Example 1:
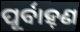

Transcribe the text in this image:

ପୂର୍ବାହ୍‌ଣ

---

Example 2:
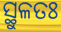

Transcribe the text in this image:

ସ୍ଥୁଳତଃ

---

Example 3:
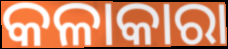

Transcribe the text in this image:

କଳାକାରା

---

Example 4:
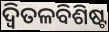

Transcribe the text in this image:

ଦ୍ୱିତଳବିଶିଷ୍ଟ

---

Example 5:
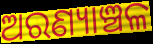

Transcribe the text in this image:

ଅରଣ୍ୟାଞ୍ଚଳ